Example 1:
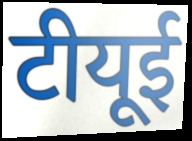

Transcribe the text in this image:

टीयूई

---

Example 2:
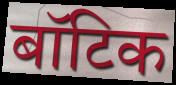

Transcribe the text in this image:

बॉटिक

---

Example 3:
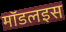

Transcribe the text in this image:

मॉडलइस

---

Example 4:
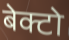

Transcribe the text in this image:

बेक्टो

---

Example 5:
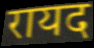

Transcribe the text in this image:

रायद